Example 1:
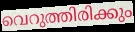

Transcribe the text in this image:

വെറുത്തിരിക്കും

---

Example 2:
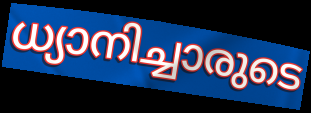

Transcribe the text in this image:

ധ്യാനിച്ചാരുടെ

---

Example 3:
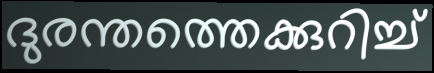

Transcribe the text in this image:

ദുരന്തത്തെക്കുറിച്ച്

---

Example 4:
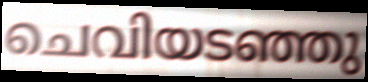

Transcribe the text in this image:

ചെവിയടഞ്ഞു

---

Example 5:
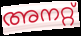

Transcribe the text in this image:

അനറ്റ്